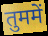
तुममें